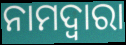
ନାମଦ୍ଵାରା